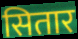
सितार